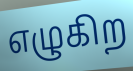
எழுகிற